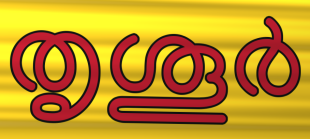
തൃശൂർ